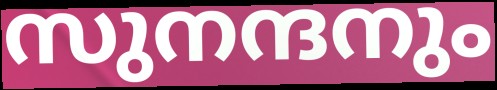
സുനന്ദനും